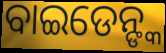
ବାଇଡେନ୍ଙ୍କ